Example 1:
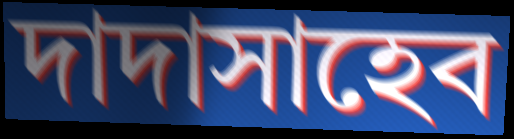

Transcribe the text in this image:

দাদাসাহেব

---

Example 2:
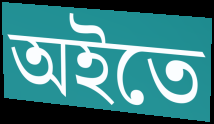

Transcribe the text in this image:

অইতে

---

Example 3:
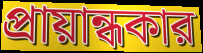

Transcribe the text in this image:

প্রায়ান্ধকার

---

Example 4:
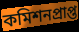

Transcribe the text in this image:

কমিশনপ্রাপ্ত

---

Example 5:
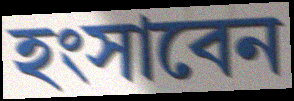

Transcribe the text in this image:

হংসাবেন